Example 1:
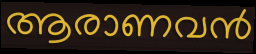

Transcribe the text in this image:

ആരാണവൻ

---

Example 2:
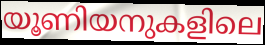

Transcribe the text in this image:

യൂണിയനുകളിലെ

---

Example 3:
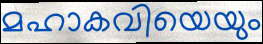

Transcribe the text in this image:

മഹാകവിയെയും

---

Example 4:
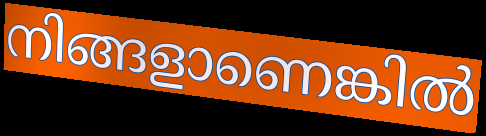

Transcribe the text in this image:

നിങ്ങളാണെങ്കിൽ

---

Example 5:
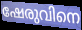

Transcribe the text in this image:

ഷേരുവിനെ